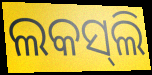
ଲକସ୍‍ଲି